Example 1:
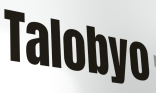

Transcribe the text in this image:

Talobyo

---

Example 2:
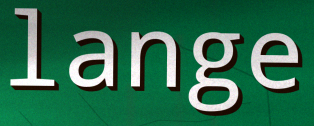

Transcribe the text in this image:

lange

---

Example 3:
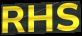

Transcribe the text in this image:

RHS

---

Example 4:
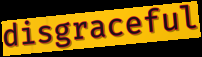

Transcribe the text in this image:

disgraceful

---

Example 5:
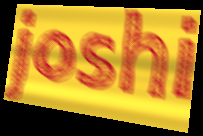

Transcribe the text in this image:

joshi